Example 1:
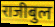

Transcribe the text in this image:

राजीबुल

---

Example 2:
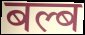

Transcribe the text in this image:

बल्ब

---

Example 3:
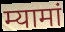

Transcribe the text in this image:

म्यामां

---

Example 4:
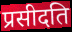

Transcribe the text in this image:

प्रसीदति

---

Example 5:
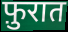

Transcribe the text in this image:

फ़ुरात